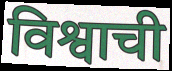
विश्वाची